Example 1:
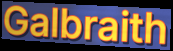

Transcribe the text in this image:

Galbraith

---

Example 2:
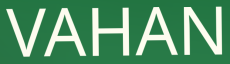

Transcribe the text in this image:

VAHAN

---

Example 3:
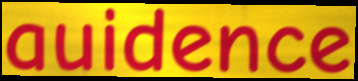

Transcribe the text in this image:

auidence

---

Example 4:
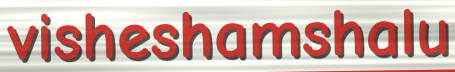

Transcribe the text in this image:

visheshamshalu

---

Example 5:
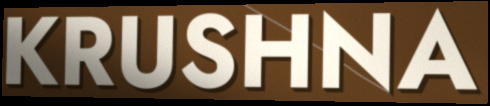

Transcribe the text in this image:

KRUSHNA